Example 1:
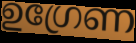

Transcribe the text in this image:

ഉഗ്രേണ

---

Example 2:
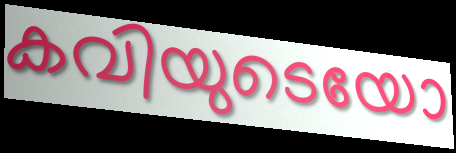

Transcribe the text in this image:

കവിയുടെയോ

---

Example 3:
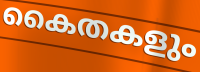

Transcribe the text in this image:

കൈതകളും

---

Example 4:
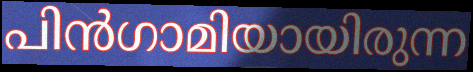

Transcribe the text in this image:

പിൻഗാമിയായിരുന്ന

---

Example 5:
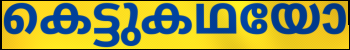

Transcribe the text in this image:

കെട്ടുകഥയോ